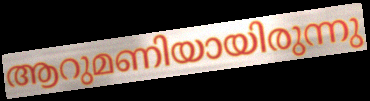
ആറുമണിയായിരുന്നു